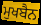
ਮੁਖਬੈਨ